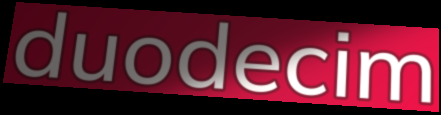
duodecim